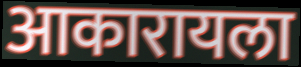
आकारायला